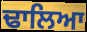
ਢਾਲਿਆ